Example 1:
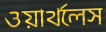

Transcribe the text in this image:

ওয়ার্থলেস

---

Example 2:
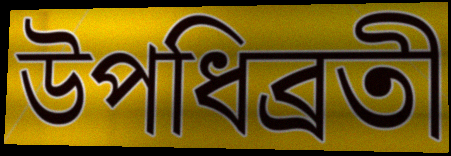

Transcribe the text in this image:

উপধিব্রতী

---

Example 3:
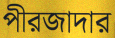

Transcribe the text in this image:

পীরজাদার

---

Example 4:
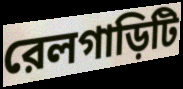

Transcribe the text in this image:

রেলগাড়িটি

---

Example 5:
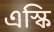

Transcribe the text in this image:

এস্কি